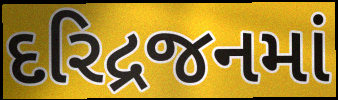
દરિદ્રજનમાં